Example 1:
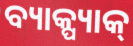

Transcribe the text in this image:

ବ୍ୟାକ୍ପ୍ୟାକ୍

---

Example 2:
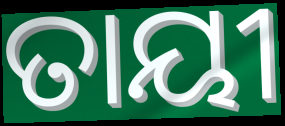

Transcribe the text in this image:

ତାୟୀ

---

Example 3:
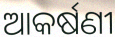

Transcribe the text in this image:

ଆକର୍ଷଣୀ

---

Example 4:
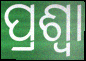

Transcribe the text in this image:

ପ୍ରଶ୍ଵା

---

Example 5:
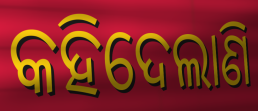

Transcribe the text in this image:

କହିଦେଲାଣି